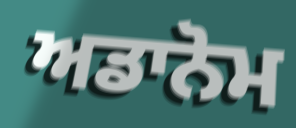
ਅਡਾਨੋਮ